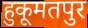
हुकूमतपुर